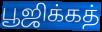
பூஜிக்கத்